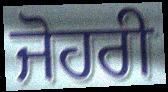
ਜੋਹਰੀ